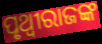
ପୃଥ୍ୱୀରାଜଙ୍କ